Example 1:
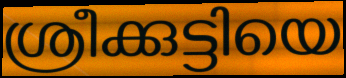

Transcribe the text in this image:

ശ്രീക്കുട്ടിയെ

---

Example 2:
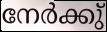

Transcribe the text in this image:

നേർക്കു്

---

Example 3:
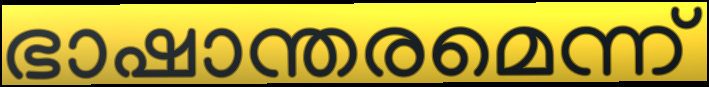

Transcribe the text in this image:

ഭാഷാന്തരമെന്ന്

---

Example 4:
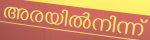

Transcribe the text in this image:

അരയിൽനിന്ന്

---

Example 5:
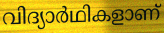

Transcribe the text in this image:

വിദ്യാർഥികളാണ്